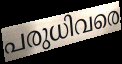
പരുധിവരെ